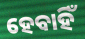
ହେବାହିଁ